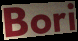
Bori